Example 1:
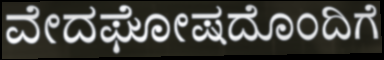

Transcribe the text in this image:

ವೇದಘೋಷದೊಂದಿಗೆ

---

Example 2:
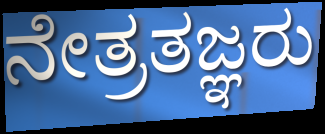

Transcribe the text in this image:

ನೇತ್ರತಜ್ಞರು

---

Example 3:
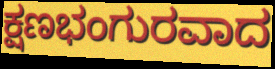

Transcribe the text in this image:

ಕ್ಷಣಭಂಗುರವಾದ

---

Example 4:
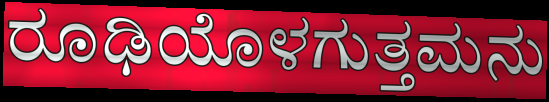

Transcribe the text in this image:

ರೂಢಿಯೊಳಗುತ್ತಮನು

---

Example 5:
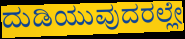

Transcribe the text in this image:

ದುಡಿಯುವುದರಲ್ಲೇ